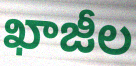
ఖాజీల